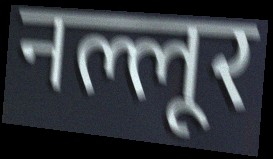
नल्लूर